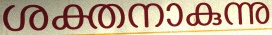
ശക്തനാകുന്നു